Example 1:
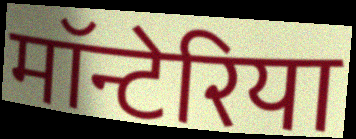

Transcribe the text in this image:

मॉन्टेरिया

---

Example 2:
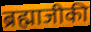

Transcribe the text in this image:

ब्रह्माजीकी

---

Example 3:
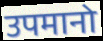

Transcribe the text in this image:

उपमानो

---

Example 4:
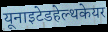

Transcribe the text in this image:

यूनाइटेडहेल्थकेयर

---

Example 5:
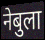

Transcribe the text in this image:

नेबुला